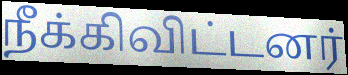
நீக்கிவிட்டனர்